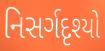
નિસર્ગદૃશ્યો